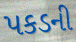
પકડની